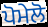
ਪੋਮੇਲੋ